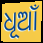
ଧୂଆଁ